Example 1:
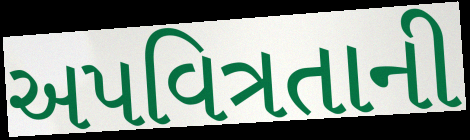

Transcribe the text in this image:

અપવિત્રતાની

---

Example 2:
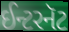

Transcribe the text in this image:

ઈન્ટરનૅટ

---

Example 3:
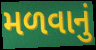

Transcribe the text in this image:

મળવાનું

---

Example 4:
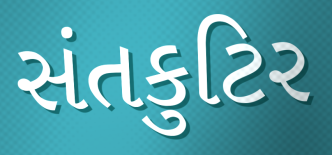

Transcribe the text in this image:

સંતકુટિર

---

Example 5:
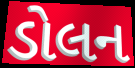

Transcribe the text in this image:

ડોલન